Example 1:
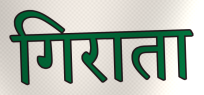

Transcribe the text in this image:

गिराता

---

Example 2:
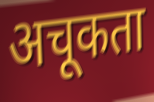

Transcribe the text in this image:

अचूकता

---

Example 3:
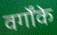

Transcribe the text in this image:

वर्गोंके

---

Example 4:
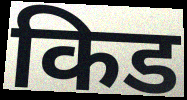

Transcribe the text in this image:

किड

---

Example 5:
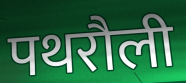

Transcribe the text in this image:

पथरौली